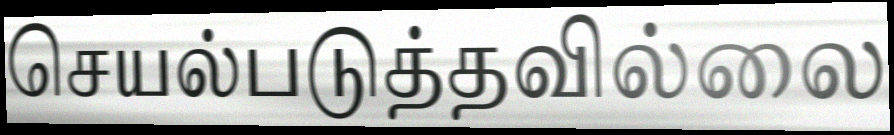
செயல்படுத்தவில்லை